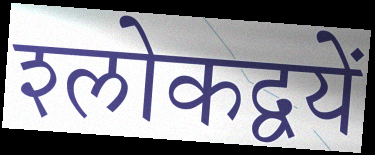
श्लोकद्वयें